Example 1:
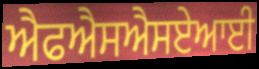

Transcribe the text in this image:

ਐਫਐਸਐਸਏਆਈ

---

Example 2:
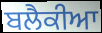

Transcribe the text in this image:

ਬਲੈਕੀਆ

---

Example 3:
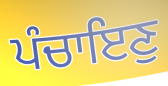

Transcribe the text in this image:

ਪੰਚਾਇਣੁ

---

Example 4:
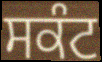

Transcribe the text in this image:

ਸਕੰਟ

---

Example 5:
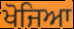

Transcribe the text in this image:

ਖੋਜਿਆ